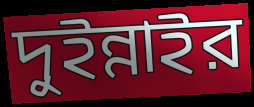
দুইন্নাইর